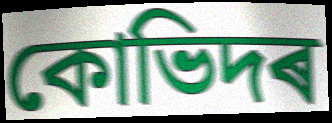
কোভিদৰ